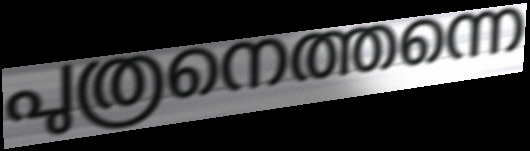
പുത്രനെത്തന്നെ